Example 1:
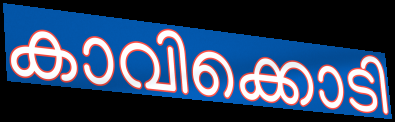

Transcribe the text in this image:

കാവിക്കൊടി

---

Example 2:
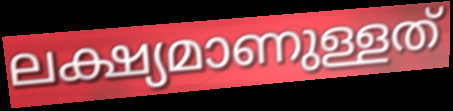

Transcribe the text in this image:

ലക്ഷ്യമാണുള്ളത്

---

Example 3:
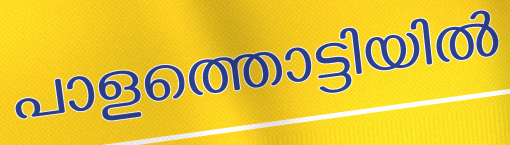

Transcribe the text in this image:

പാളത്തൊട്ടിയിൽ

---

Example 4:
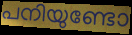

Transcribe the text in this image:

പനിയുണ്ടോ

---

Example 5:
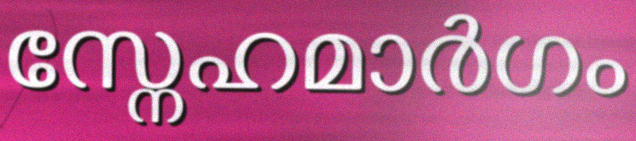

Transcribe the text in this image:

സ്നേഹമാർഗം